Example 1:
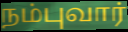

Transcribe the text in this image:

நம்புவார்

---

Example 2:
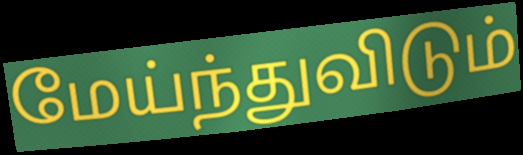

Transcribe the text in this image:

மேய்ந்துவிடும்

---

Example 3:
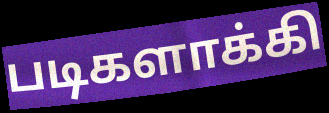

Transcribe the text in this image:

படிகளாக்கி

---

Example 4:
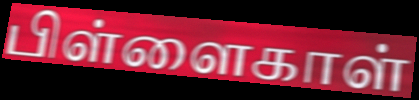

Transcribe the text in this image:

பிள்ளைகாள்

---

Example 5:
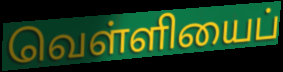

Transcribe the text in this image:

வெள்ளியைப்